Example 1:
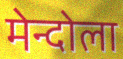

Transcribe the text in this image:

मेन्दोला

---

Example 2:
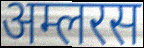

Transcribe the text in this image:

अम्लरस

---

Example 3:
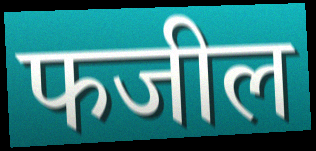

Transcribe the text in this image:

फजील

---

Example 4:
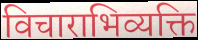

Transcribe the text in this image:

विचाराभिव्यक्ति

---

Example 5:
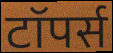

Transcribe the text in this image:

टॉपर्स